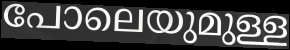
പോലെയുമുള്ള